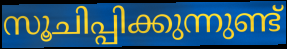
സൂചിപ്പിക്കുന്നുണ്ട്